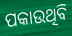
ପକାଉଥିବି